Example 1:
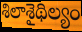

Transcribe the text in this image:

శిలాశైథిల్యం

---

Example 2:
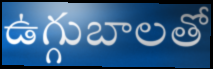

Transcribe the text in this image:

ఉగ్గుబాలతో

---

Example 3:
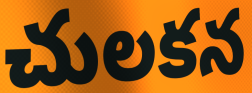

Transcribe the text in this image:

చులకన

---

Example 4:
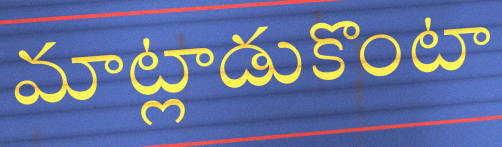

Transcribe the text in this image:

మాట్లాడుకొంటా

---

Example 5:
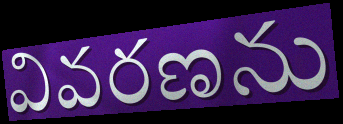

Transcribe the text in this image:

వివరణను